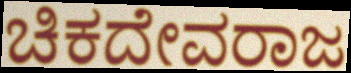
ಚಿಕದೇವರಾಜ